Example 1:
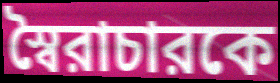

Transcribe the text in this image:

স্বৈরাচারকে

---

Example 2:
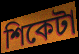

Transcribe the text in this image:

শিকেটা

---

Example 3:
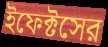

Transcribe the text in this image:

ইফেক্টসের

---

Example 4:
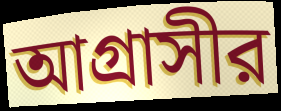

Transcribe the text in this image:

আগ্রাসীর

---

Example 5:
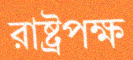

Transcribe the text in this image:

রাষ্ট্রপক্ষ